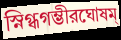
স্নিগ্ধগম্ভীরঘোষম্